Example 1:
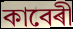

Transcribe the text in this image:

কাবেৰী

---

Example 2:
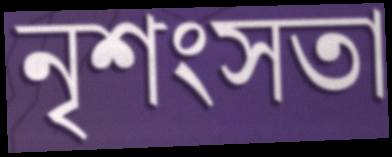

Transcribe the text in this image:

নৃশংসতা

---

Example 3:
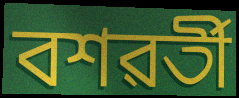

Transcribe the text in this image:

বশৱৰ্তী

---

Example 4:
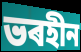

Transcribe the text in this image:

ভৰহীন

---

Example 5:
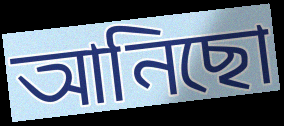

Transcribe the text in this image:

আনিছো